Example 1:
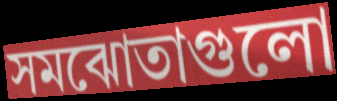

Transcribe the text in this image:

সমঝোতাগুলো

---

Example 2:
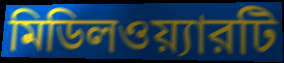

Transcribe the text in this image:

মিডিলওয়্যারটি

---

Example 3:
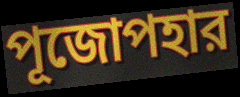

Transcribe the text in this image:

পূজোপহার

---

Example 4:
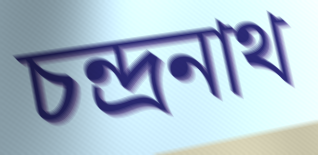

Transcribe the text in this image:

চন্দ্রনাথ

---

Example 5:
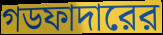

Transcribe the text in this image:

গডফাদারের